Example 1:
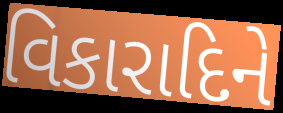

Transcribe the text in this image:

વિકારાદિને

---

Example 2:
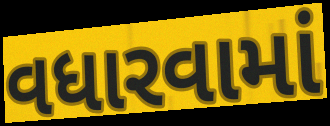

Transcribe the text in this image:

વધારવામાં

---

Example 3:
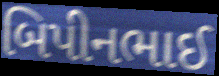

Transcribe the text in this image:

બિપીનભાઈ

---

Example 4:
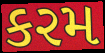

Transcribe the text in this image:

કરમ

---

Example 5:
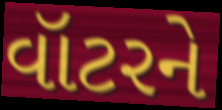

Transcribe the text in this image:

વૉટરને